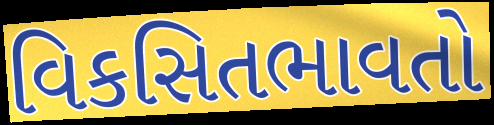
વિકસિતભાવતો